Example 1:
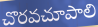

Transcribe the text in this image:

చొరవచూపాలి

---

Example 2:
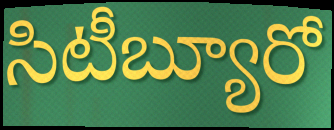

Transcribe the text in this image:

సిటీబ్యూరో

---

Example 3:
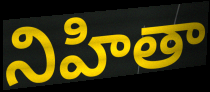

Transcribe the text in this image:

నిహితా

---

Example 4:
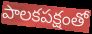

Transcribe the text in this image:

పాలకపక్షంతో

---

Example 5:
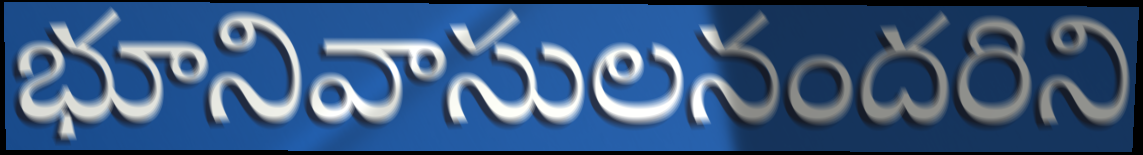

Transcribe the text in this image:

భూనివాసులనందరిని